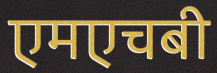
एमएचबी